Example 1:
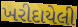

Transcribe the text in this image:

ખરીદાયેલી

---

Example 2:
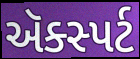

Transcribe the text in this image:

ઍક્સ્પર્ટ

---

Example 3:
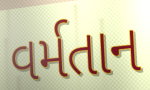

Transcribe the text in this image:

વર્મતાન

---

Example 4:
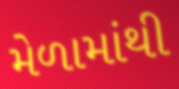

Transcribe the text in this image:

મેળામાંથી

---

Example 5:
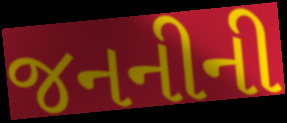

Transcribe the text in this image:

જનનીની